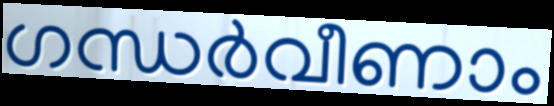
ഗന്ധർവീണാം